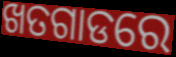
ଖତଗାଡରେ